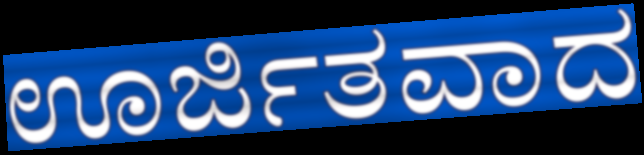
ಊರ್ಜಿತವಾದ